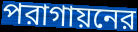
পরাগায়নের